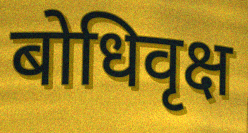
बोधिवृक्ष